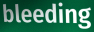
bleeding